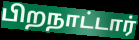
பிறநாட்டார்